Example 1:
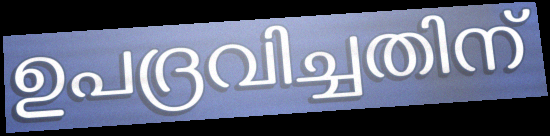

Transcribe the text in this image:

ഉപദ്രവിച്ചതിന്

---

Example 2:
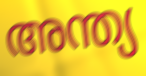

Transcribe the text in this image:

അന്ത്യ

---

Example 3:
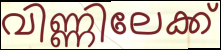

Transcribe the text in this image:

വിണ്ണിലേക്ക്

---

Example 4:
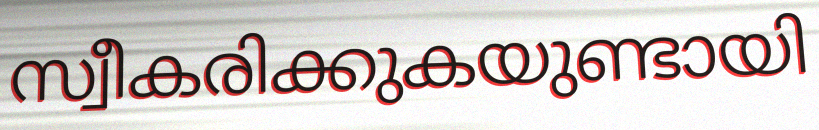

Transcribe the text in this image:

സ്വീകരിക്കുകയുണ്ടായി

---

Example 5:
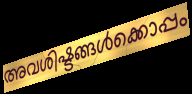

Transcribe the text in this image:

അവശിഷ്ടങ്ങൾക്കൊപ്പം